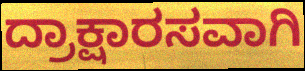
ದ್ರಾಕ್ಷಾರಸವಾಗಿ